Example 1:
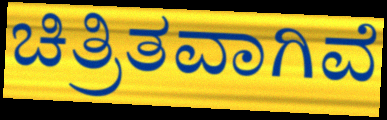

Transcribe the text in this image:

ಚಿತ್ರಿತವಾಗಿವೆ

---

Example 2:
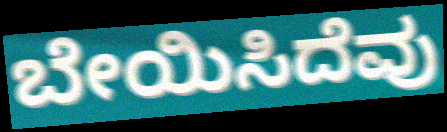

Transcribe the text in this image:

ಬೇಯಿಸಿದೆವು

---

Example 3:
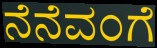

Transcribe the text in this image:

ನೆನೆವಂಗೆ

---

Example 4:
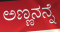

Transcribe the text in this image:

ಅಣ್ಣನನ್ನೆ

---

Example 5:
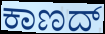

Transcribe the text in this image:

ಕಾಣದ್